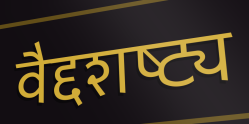
वैद्दशष्ट्य